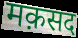
मक़सद